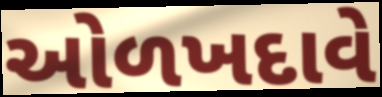
ઓળખદાવે